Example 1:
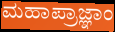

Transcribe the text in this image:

ಮಹಾಪ್ರಾಜ್ಞಾಂ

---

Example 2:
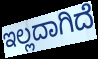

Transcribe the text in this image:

ಇಲ್ಲದಾಗಿದೆ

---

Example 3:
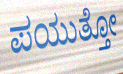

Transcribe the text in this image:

ಪಯುತ್ತೋ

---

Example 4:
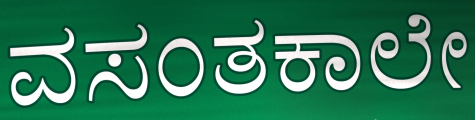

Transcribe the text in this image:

ವಸಂತಕಾಲೇ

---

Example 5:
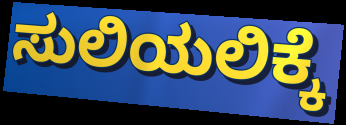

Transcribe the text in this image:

ಸುಲಿಯಲಿಕ್ಕೆ